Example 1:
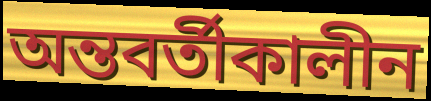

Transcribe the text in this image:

অন্তবর্তীকালীন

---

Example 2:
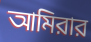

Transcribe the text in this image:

আমিরার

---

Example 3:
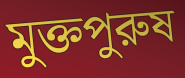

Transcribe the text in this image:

মুক্তপুরুষ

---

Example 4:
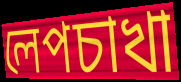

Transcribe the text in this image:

লেপচাখা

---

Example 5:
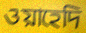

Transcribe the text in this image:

ওয়াহেদি